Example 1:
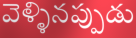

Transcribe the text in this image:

వెళ్ళినప్పుడు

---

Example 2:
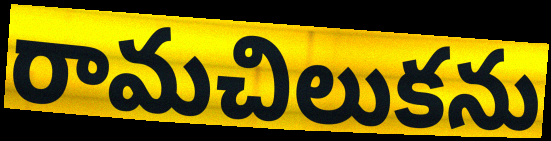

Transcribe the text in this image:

రామచిలుకను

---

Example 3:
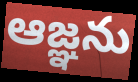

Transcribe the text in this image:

ఆజ్ఞను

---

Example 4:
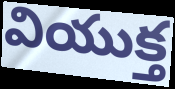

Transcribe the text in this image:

వియుక్త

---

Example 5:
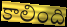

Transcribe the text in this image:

కాలింది